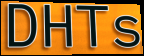
DHTs